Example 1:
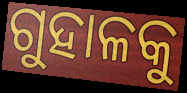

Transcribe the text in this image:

ଗୁହାଳକୁ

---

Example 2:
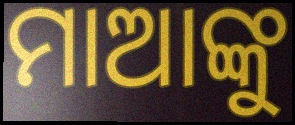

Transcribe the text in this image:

ମାଆଙ୍କୁ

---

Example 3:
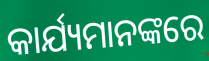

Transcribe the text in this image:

କାର୍ଯ୍ୟମାନଙ୍କରେ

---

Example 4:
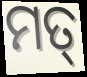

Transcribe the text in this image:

ମତ୍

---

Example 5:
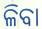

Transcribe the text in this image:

ଳିବା